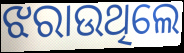
ଝରାଉଥିଲେ